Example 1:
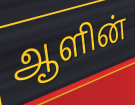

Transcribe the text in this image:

ஆளின்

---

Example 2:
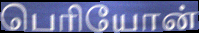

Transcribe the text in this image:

பெரியோன்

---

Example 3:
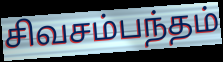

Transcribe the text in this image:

சிவசம்பந்தம்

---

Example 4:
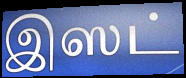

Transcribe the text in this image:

இஸட்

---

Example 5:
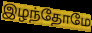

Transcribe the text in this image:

இழந்தோமே